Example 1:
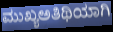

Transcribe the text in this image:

ಮುಖ್ಯಅತಿಥಿಯಾಗಿ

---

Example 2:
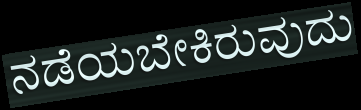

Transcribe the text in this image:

ನಡೆಯಬೇಕಿರುವುದು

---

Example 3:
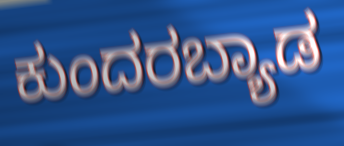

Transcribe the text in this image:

ಕುಂದರಬ್ಯಾಡ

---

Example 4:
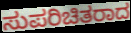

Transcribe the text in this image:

ಸುಪರಿಚಿತರಾದ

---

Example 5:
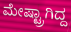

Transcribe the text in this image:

ಮೇಷ್ಟ್ರಾಗಿದ್ದ